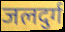
जलदुर्ग